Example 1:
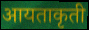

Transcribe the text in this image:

आयताकृती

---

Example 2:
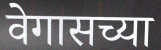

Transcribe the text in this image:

वेगासच्या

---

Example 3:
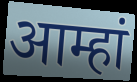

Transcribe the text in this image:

आम्हां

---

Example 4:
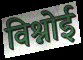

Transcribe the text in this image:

विश्नोई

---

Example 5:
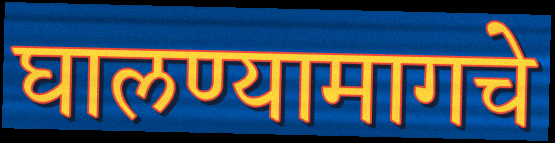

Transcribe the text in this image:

घालण्यामागचे